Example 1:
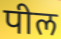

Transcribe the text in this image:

पील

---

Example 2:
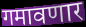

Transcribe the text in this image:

गमावणार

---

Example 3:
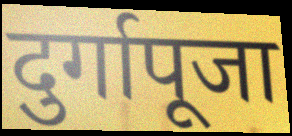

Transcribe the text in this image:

दुर्गापूजा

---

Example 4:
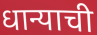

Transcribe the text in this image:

धान्याची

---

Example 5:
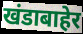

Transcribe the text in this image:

खंडाबाहेर